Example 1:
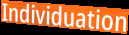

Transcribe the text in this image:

Individuation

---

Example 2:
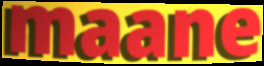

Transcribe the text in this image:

maane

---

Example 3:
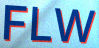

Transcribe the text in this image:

FLW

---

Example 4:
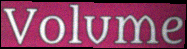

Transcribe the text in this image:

Volume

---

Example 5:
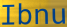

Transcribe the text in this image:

Ibnu